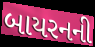
બાયરનની